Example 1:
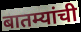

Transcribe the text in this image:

बातम्यांची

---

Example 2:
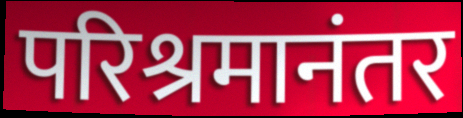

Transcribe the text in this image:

परिश्रमानंतर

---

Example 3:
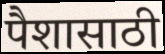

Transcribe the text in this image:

पैशासाठी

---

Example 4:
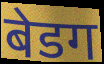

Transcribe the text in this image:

बेडग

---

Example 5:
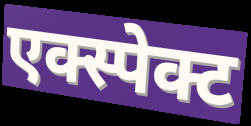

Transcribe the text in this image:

एक्स्पेक्ट